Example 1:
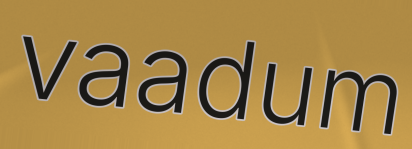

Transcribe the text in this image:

vaadum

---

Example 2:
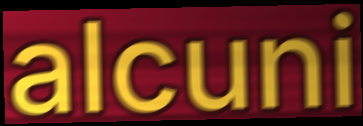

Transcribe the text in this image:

alcuni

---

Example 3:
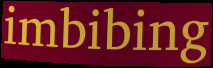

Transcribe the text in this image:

imbibing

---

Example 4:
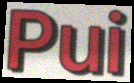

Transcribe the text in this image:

Pui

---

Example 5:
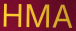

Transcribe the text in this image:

HMA